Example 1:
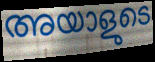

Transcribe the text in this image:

അയാളുടെ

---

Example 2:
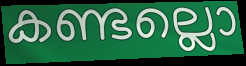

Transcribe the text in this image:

കണ്ടല്ലൊ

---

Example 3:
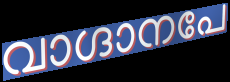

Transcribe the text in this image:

വാഗ്ദാനപേ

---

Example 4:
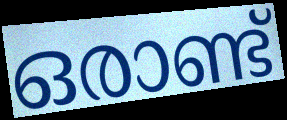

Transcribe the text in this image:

ഒരാണ്ട്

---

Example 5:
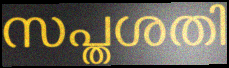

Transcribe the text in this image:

സപ്തശതി